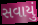
સવાયું